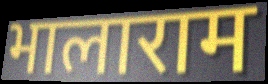
भालाराम